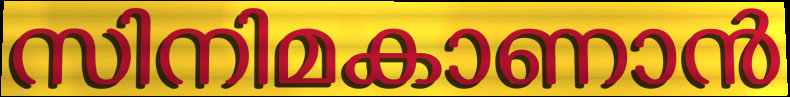
സിനിമകാണാൻ